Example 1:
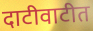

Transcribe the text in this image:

दाटीवाटीत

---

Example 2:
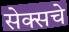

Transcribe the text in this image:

सेक्सचे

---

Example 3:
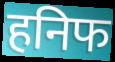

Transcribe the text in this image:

हनिफ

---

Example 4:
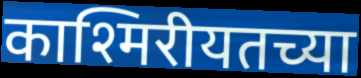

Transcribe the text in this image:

काश्मिरीयतच्या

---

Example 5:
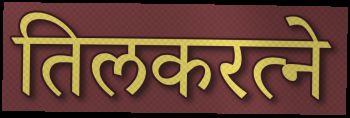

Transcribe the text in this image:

तिलकरत्ने